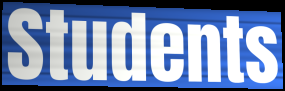
Students